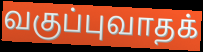
வகுப்புவாதக்